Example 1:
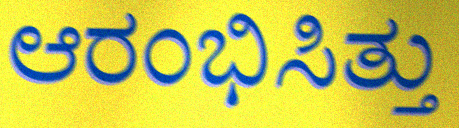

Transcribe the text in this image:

ಆರಂಭಿಸಿತ್ತು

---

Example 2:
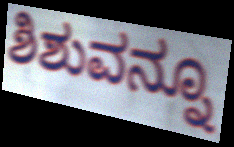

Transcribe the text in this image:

ಶಿಶುವನ್ನೂ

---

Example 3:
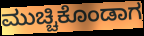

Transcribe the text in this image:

ಮುಚ್ಚಿಕೊಂಡಾಗ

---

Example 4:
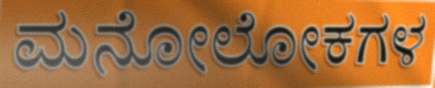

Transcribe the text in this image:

ಮನೋಲೋಕಗಳ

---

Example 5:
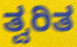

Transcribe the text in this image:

ತ್ವರಿತ